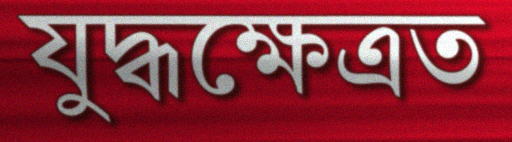
যুদ্ধক্ষেত্ৰত